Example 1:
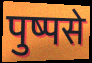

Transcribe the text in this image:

पुष्पसे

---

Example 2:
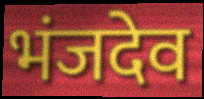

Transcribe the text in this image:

भंजदेव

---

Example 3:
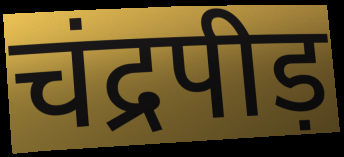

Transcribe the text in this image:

चंद्रपीड़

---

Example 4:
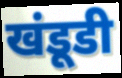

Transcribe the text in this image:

खंडूडी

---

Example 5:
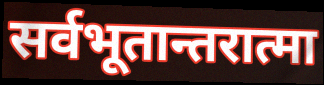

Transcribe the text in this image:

सर्वभूतान्तरात्मा